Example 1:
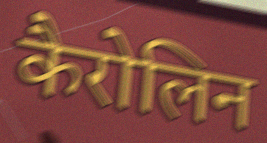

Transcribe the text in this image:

कैरोलिन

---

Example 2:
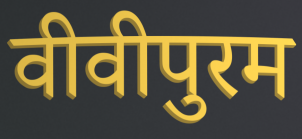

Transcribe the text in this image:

वीवीपुरम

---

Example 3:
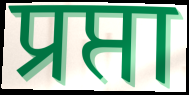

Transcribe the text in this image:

प्रप्ता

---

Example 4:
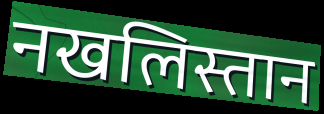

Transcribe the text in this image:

नखलिस्तान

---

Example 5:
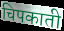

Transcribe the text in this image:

चिपकाती